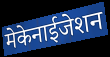
मेकेनाईजेशन